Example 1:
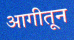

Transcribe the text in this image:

आगीतून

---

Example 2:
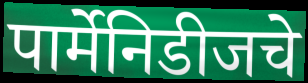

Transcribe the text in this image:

पार्मेनिडीजचे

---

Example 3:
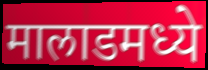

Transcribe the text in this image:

मालाडमध्ये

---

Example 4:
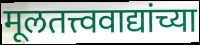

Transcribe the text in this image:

मूलतत्त्ववाद्यांच्या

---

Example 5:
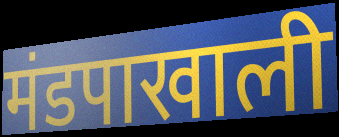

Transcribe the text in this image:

मंडपाखाली